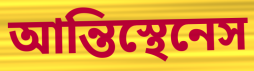
আন্তিস্থেনেস